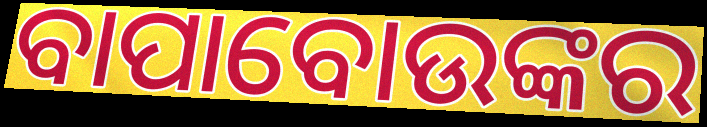
ବାପାବୋଉଙ୍କର